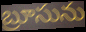
బ్రూసును